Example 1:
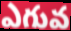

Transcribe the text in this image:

ఎగువ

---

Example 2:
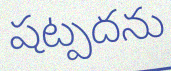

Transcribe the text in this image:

షట్పదను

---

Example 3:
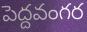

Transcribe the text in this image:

పెద్దవంగర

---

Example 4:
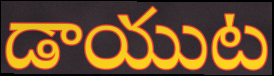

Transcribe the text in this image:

డాయుట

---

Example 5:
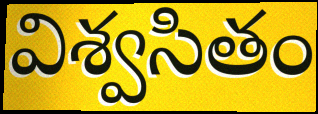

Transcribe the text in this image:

విశ్వసితం